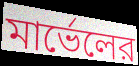
মার্ভেলের